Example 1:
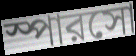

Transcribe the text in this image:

স্পারসো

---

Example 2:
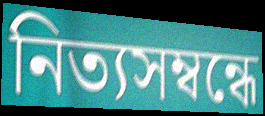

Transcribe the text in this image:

নিত্যসম্বন্ধে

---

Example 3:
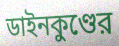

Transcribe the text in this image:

ডাইনকুণ্ডের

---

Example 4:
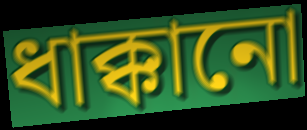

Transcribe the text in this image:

ধাক্কানো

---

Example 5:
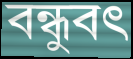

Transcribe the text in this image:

বন্ধুবৎ